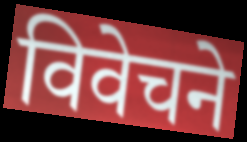
विवेचने